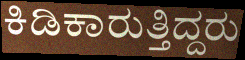
ಕಿಡಿಕಾರುತ್ತಿದ್ದರು